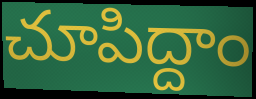
చూపిద్దాం